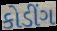
કોડીંગ